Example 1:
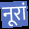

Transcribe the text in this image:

नूरां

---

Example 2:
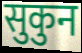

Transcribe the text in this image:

सुकुन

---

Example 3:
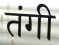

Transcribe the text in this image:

तंगी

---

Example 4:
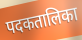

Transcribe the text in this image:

पदकतालिका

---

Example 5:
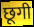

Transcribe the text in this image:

छूगी